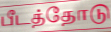
பீடத்தோடு